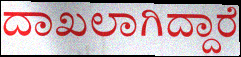
ದಾಖಲಾಗಿದ್ದಾರೆ